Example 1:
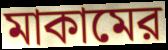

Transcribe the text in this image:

মাকামের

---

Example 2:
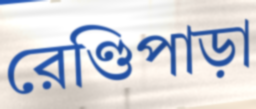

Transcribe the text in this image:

রেণ্ডিপাড়া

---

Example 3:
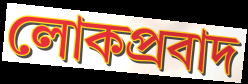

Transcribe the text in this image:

লোকপ্রবাদ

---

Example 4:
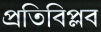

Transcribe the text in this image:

প্রতিবিপ্লব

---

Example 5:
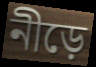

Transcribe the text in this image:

নীড়ে